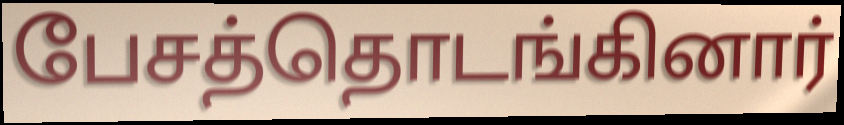
பேசத்தொடங்கினார்